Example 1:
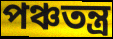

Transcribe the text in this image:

পঞ্চতন্ত্ৰ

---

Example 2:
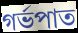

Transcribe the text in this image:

গৰ্ভপাত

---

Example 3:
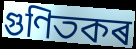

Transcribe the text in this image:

গুণিতকৰ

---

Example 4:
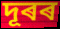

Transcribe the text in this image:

দূৰৰ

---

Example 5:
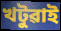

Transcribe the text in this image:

খটুৱাই